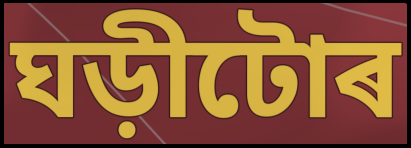
ঘড়ীটোৰ